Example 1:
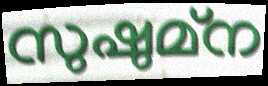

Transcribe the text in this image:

സുഷുമ്ന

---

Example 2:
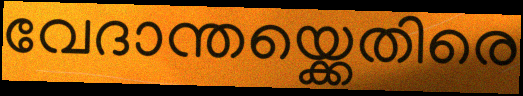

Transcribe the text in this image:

വേദാന്തയ്ക്കെതിരെ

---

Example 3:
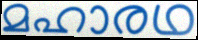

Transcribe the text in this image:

മഹാരഥ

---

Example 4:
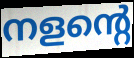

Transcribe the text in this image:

നളന്റെ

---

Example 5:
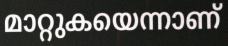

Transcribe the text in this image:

മാറ്റുകയെന്നാണ്